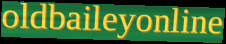
oldbaileyonline